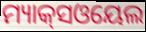
ମ୍ୟାକ୍‌ସଓୟେଲ